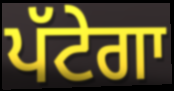
ਪੱਟੇਗਾ